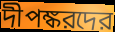
দীপঙ্করদের